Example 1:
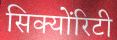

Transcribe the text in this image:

सिक्योंरिटी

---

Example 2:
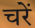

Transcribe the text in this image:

चरें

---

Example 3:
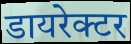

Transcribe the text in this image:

डायरेक्‍टर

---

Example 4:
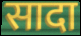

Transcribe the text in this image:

सादा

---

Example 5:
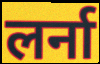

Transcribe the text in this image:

लर्ना